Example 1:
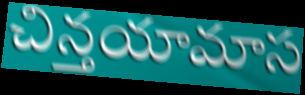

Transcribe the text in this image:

చిన్తయామాస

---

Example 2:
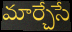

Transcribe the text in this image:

మార్చేసే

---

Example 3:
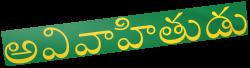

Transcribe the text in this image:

అవివాహితుడు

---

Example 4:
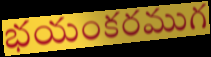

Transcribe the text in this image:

భయంకరముగ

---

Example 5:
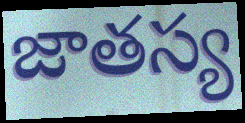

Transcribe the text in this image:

జాతస్య